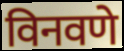
विनवणे